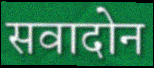
सवादोन